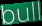
bull